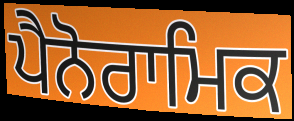
ਪੈਨੋਰਾਮਿਕ